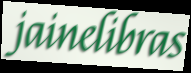
jainelibras